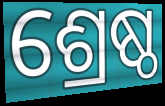
ଶ୍ରେଷ୍ଠ